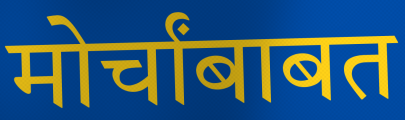
मोर्चांबाबत